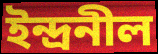
ইন্দ্ৰনীল